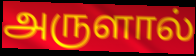
அருளால்